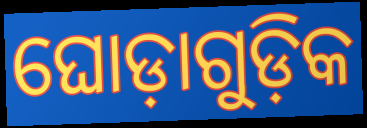
ଘୋଡ଼ାଗୁଡ଼ିକ